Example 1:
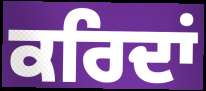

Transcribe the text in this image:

ਕਰਿਦਾਂ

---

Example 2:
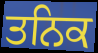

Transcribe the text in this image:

ਤਨਿਕ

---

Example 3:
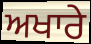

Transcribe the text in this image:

ਅਖਾਰੇ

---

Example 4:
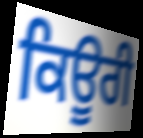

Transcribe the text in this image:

ਕਿਊਰੀ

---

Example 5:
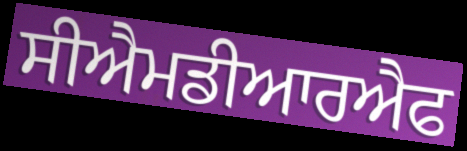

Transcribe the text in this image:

ਸੀਐਮਡੀਆਰਐਫ